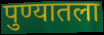
पुण्यातला